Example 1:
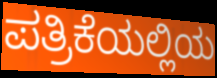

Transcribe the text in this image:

ಪತ್ರಿಕೆಯಲ್ಲಿಯ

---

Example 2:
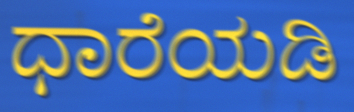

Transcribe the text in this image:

ಧಾರೆಯಡಿ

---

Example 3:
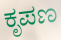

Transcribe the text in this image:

ಕೃಪಣ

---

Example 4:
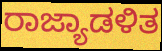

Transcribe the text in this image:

ರಾಜ್ಯಾಡಳಿತ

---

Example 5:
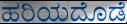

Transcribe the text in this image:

ಹರಿಯದೊಡೆ